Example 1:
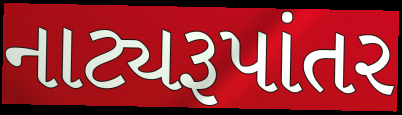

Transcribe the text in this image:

નાટ્યરૂપાંતર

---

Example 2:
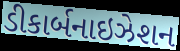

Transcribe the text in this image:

ડીકાર્બનાઇઝેશન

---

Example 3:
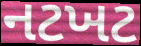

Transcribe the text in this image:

નટખટ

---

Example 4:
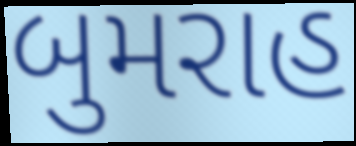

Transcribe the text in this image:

બુમરાહ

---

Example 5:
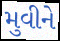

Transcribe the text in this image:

મુવીને